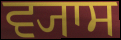
ਵ੍ਯਾਸ